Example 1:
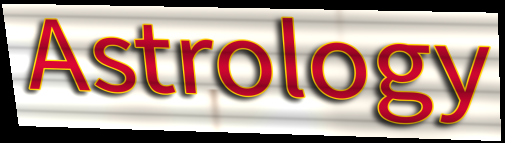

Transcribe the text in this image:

Astrology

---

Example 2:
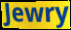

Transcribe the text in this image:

Jewry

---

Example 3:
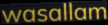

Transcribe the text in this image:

wasallam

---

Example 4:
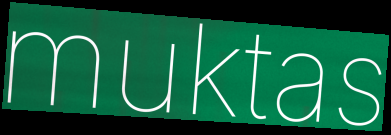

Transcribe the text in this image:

muktas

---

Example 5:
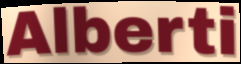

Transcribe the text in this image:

Alberti